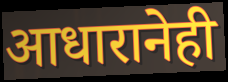
आधारानेही